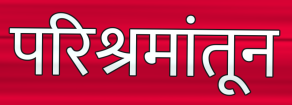
परिश्रमांतून